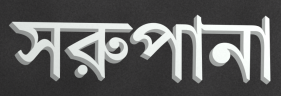
সরুপানা